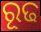
ରୂଢ